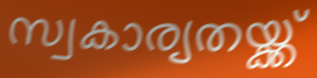
സ്വകാര്യതയ്ക്ക്